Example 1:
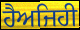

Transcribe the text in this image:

ਹੈਅਜਿਹੀ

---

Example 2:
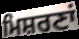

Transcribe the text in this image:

ਮਿਸ਼ਰਣਾਂ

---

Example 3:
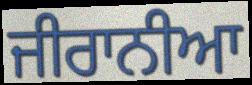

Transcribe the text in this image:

ਜੀਰਾਨੀਆ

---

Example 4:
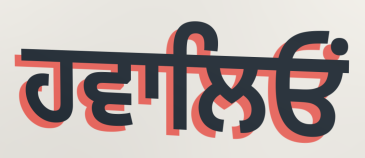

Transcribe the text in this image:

ਹਵਾਲਿਓਂ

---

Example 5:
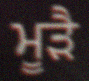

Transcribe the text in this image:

ਮੂੜੈ